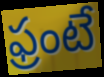
ఫ్రంటే